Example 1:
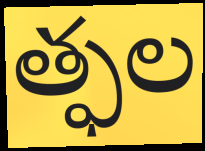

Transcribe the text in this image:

త్ఫల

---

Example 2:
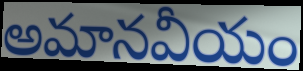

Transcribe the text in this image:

అమానవీయం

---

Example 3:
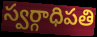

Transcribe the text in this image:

స్వర్గాధిపతి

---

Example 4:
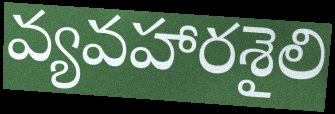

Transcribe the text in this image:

వ్యవహారశైలి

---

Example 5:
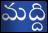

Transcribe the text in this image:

మద్ది